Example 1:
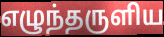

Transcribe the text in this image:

எழுந்தருளிய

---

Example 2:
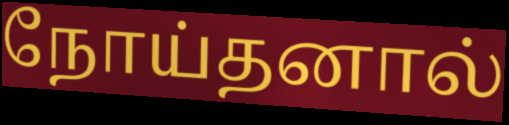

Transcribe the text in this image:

நோய்தனால்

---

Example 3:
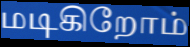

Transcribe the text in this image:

மடிகிறோம்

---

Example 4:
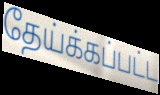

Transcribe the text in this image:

தேய்க்கப்பட்ட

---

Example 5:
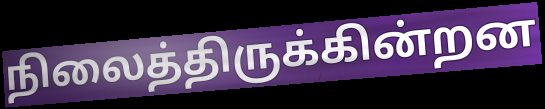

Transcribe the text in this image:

நிலைத்திருக்கின்றன